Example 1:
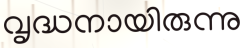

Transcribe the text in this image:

വൃദ്ധനായിരുന്നു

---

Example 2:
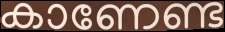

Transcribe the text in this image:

കാണേണ്ട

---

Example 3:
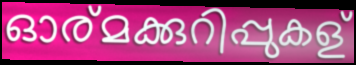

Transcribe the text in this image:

ഓര്മക്കുറിപ്പുകള്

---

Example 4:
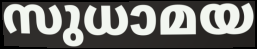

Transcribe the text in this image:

സുധാമയ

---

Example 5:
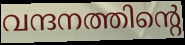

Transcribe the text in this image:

വന്ദനത്തിന്റെ